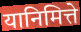
यानिमित्ते